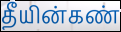
தீயின்கண்